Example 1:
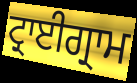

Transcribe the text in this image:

ਟ੍ਰਾਈਗ੍ਰਾਮ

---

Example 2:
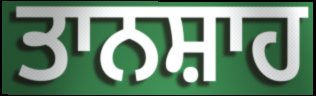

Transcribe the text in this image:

ਤਾਨਸ਼ਾਹ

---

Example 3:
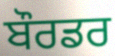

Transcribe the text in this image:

ਬੌਰਡਰ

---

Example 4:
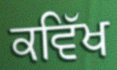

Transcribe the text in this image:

ਕਵਿੱਖ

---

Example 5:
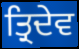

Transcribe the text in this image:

ਤ੍ਰਿਦੇਵ